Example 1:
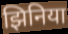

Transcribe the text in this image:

झिनिया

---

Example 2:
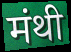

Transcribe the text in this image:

मंथी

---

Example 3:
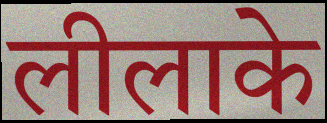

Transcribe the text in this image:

लीलाके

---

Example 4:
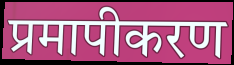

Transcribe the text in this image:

प्रमापीकरण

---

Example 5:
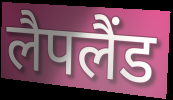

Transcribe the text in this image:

लैपलैंड